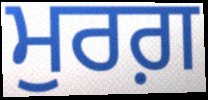
ਮੁਰਗ਼